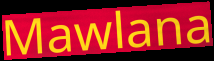
Mawlana